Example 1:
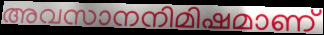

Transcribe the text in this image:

അവസാനനിമിഷമാണ്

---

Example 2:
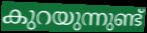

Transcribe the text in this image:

കുറയുന്നുണ്ട്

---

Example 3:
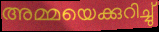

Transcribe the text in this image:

അമ്മയെക്കുറിച്ചു്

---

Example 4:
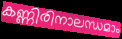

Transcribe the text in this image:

കണ്ണിരിനാലന്ധമാം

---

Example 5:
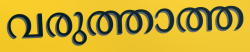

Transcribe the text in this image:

വരുത്താത്ത